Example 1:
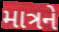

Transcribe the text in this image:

માત્રને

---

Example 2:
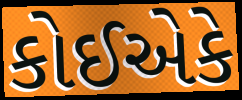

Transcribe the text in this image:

કોઈએકે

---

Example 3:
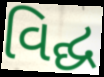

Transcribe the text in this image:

વિદ્ઘ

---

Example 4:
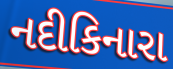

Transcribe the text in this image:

નદીકિનારા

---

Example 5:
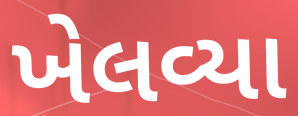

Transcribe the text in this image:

ખેલવ્યા